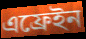
এফ্রেইন